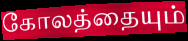
கோலத்தையும்